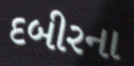
દબીરના